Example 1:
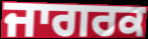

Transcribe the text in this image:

ਜਾਗਰਕ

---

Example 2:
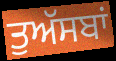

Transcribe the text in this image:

ਤੁਅੱਸਬਾਂ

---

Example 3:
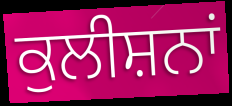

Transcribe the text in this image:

ਕੁਲੀਸ਼ਨਾਂ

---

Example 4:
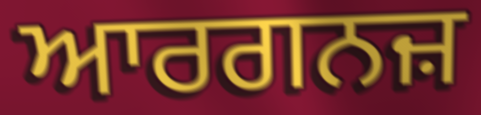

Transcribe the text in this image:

ਆਰਗਨਜ਼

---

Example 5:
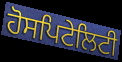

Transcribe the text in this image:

ਹੋਸਪਿਟੇਲਿਟੀ